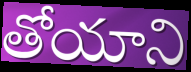
తోయాని